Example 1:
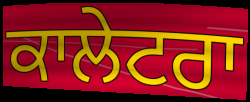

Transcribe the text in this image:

ਕਾਲੇਟਰਾ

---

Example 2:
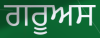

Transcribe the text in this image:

ਗਰੂਅਸ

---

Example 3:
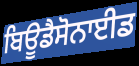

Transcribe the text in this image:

ਬਿਊਡੈਸੋਨਾਈਡ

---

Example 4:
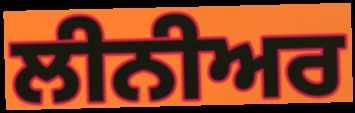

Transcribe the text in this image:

ਲੀਨੀਅਰ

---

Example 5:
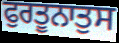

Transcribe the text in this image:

ਫੁਰਤੂਨਾਤੁਸ